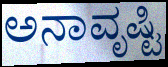
ಅನಾವೃಷ್ಟಿ